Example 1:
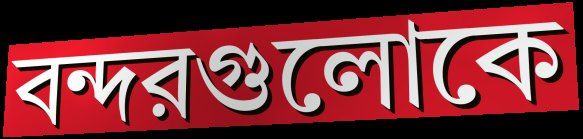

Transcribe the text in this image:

বন্দরগুলোকে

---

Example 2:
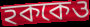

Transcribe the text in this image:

হককেও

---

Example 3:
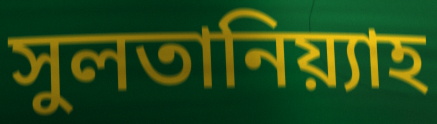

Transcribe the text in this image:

সুলতানিয়্যাহ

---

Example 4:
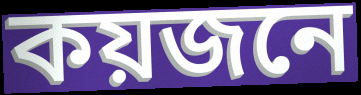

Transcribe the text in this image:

কয়জনে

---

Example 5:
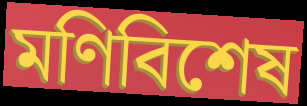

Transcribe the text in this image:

মণিবিশেষ